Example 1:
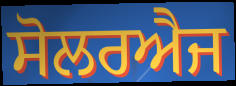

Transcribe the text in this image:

ਸੋਲਰਐਜ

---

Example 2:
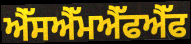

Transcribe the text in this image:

ਐੱਸਐੱਮਐੱਫਐੱਫ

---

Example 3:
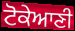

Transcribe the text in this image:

ਟੋਕੇਆਣੀ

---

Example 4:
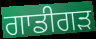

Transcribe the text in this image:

ਗਾਡੀਗੜ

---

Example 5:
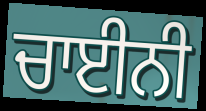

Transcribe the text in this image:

ਚਾਈਨੀ